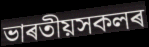
ভাৰতীয়সকলৰ